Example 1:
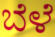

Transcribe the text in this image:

ಬೆಳೆ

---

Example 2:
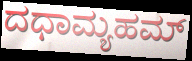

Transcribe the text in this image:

ದಧಾಮ್ಯಹಮ್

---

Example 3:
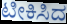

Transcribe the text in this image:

ಟೀಕಿಸಿದ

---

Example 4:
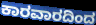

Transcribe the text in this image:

ಕಾರವಾರದಿಂದ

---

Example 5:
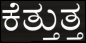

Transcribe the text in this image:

ಕೆತ್ತುತ್ತ